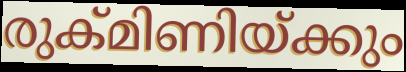
രുക്മിണിയ്ക്കും